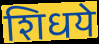
शिधये